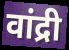
वांद्री